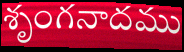
శృంగనాదము